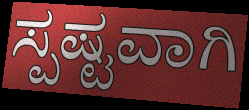
ಸ್ಪಷ್ಟವಾಗಿ